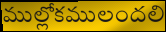
ముల్లోకములందలి